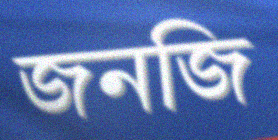
জনজি